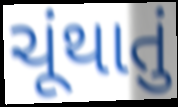
ચૂંથાતું